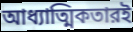
আধ্যাত্মিকতারই